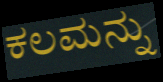
ಕಲಮನ್ನು